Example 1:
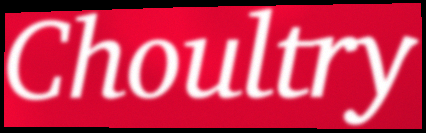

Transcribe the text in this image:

Choultry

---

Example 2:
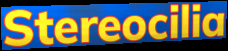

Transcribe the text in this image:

Stereocilia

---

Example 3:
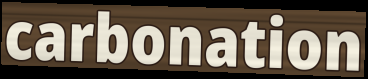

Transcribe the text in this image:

carbonation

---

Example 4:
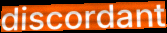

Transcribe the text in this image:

discordant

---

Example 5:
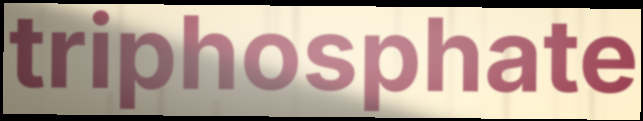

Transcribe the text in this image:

triphosphate